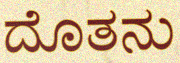
ದೊತನು